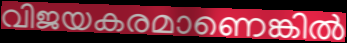
വിജയകരമാണെങ്കിൽ